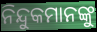
ନିନ୍ଦୁକମାନଙ୍କୁ